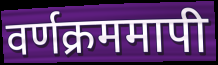
वर्णक्रममापी